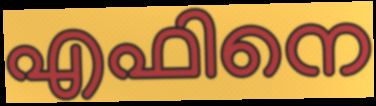
എഫിനെ